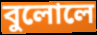
বুলোলে